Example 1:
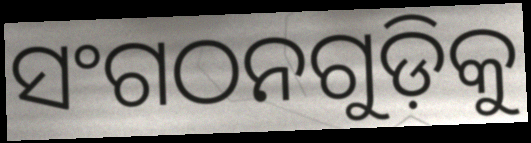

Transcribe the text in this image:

ସଂଗଠନଗୁଡ଼ିକୁ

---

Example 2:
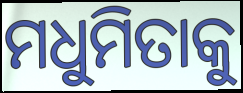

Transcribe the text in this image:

ମଧୁମିତାକୁ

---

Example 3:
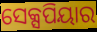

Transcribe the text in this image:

ସେକ୍ସପିୟାର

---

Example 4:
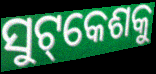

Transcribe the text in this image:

ସୁଟ୍‌କେଶକୁ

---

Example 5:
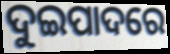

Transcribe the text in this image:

ଦୁଇପାଦରେ